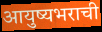
आयुष्यभराची